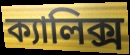
ক্যালিক্স